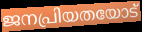
ജനപ്രിയതയോട്